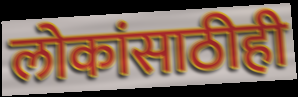
लोकांसाठीही